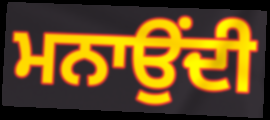
ਮਨਾਉਂਦੀ